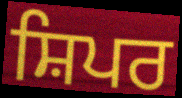
ਸ਼ਿਪਰ